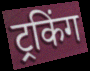
ट्रकिंग